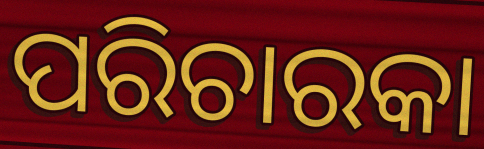
ପରିଚାରକା